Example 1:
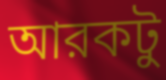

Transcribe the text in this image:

আরকটু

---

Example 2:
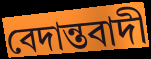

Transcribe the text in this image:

বেদান্তবাদী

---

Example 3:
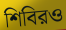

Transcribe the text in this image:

শিবিরও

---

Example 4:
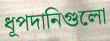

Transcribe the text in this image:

ধূপদানিগুলো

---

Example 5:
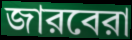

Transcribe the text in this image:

জারবেরা